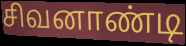
சிவனாண்டி